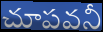
చూపవనీ